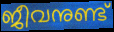
ജീവനുണ്ട്